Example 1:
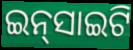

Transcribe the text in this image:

ଇନ୍‌ସାଇଟି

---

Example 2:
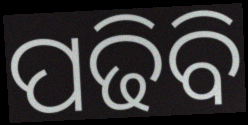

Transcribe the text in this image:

ପଢିବି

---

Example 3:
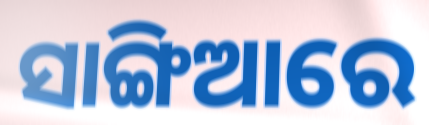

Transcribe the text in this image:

ସାଙ୍ଗିଆରେ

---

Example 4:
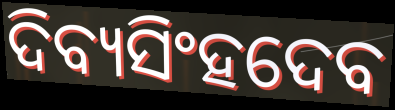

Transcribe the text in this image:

ଦିବ୍ୟସିଂହଦେବ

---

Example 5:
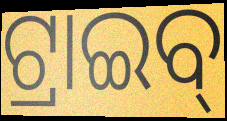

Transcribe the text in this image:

ଟ୍ରାଇବ୍